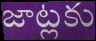
జాట్లకు